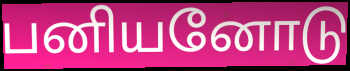
பனியனோடு